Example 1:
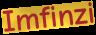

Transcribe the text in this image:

Imfinzi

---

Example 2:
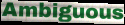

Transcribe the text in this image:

Ambiguous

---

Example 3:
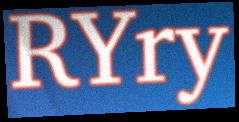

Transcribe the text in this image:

RYry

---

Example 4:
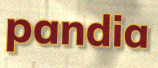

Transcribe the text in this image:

pandia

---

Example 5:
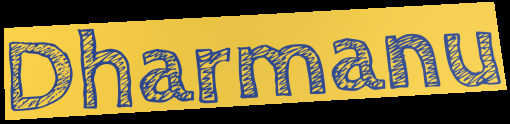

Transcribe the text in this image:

Dharmanu